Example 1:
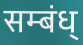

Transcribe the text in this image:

सम्बंध्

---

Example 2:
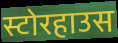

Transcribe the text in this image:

स्टोरहाउस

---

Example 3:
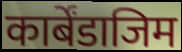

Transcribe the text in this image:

कार्बेंडाजिम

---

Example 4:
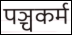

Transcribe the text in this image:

पञ्चकर्म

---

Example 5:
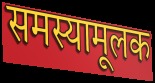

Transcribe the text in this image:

समस्यामूलक